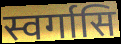
स्वर्गासि